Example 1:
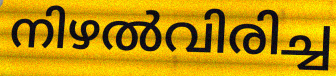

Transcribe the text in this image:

നിഴൽവിരിച്ച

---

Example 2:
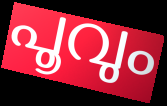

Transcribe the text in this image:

പൂവും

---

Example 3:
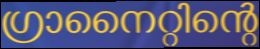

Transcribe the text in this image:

ഗ്രാനൈറ്റിന്റെ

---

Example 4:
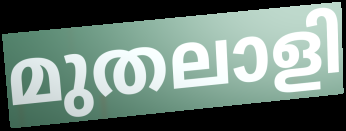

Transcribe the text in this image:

മുതലാളി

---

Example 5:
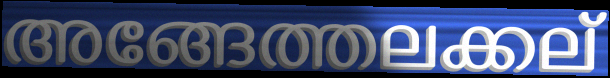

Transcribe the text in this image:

അങ്ങേത്തലക്കല്